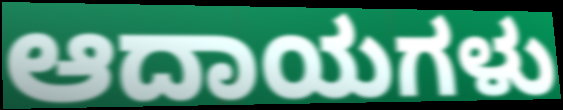
ಆದಾಯಗಳು